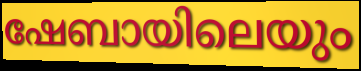
ഷേബായിലെയും